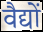
वैद्यों